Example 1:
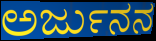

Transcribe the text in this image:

ಅರ್ಜುನನ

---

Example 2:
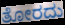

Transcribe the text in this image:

ತೋರದು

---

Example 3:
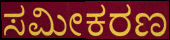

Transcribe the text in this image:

ಸಮೀಕರಣ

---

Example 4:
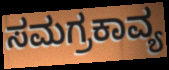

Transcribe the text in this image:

ಸಮಗ್ರಕಾವ್ಯ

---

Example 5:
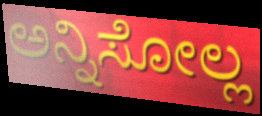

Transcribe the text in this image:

ಅನ್ನಿಸೋಲ್ಲ